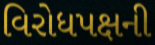
વિરોધપક્ષની